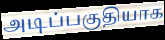
அடிப்பகுதியாக